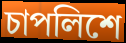
চাপলিশে